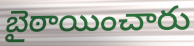
బైఠాయించారు